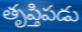
తృప్తిపడు